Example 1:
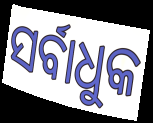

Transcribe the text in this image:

ସର୍ବାଧୁକ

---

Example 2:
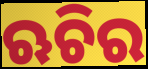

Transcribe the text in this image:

ଋଚିର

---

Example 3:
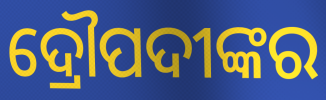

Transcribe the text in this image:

ଦ୍ରୌପଦୀଙ୍କର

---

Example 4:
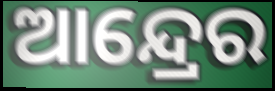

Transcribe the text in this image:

ଆନ୍ଦ୍ରେର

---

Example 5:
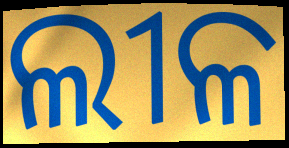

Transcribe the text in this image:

ଲୀଳ